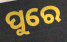
ପୁରେ